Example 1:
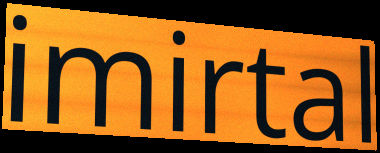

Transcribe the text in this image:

imirtal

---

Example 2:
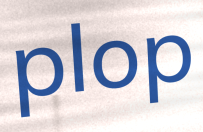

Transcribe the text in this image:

plop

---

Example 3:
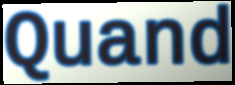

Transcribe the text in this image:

Quand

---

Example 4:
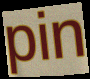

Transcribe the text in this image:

pin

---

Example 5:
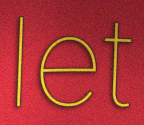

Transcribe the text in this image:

let